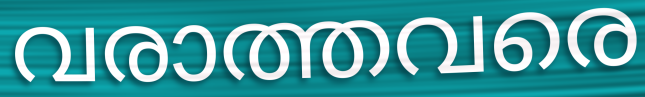
വരാത്തവരെ